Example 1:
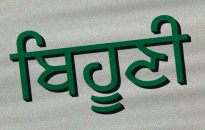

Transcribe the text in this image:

ਬਿਹੂਣੀ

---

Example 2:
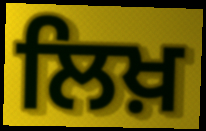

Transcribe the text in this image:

ਲਿਖ਼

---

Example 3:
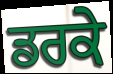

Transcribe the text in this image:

ਡਰਕੇ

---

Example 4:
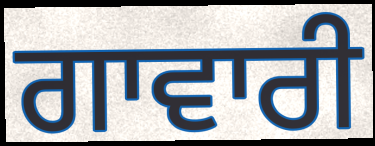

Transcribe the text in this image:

ਗਾਵਾਰੀ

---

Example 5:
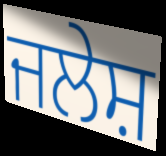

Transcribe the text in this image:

ਜਲੇਸ਼